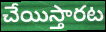
చేయిస్తారట